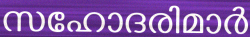
സഹോദരിമാർ